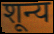
शून्य